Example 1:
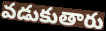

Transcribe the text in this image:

వడుకుతారు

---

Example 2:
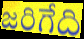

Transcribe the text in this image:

జరిగేది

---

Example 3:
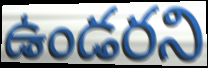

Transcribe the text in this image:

ఉండరని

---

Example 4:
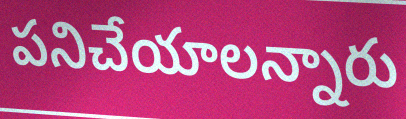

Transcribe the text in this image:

పనిచేయాలన్నారు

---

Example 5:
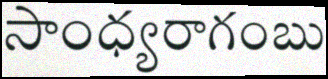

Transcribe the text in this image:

సాంధ్యరాగంబు